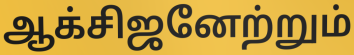
ஆக்சிஜனேற்றும்